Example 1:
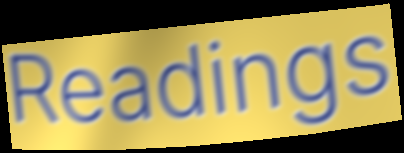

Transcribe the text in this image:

Readings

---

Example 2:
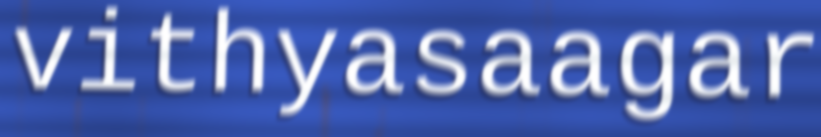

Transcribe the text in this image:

vithyasaagar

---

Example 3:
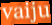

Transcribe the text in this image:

vaiju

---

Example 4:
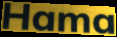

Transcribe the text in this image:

Hama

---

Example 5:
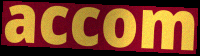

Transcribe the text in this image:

accom